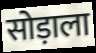
सोड़ाला